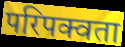
परिपक्वता